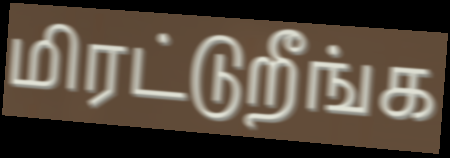
மிரட்டுறீங்க